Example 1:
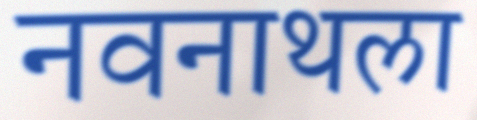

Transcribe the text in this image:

नवनाथला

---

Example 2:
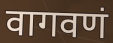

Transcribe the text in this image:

वागवणं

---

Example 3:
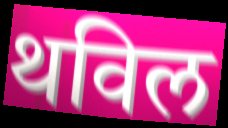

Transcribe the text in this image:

थविल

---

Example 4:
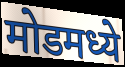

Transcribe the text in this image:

मोडमध्ये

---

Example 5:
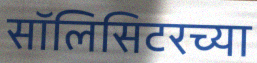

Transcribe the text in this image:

सॉलिसिटरच्या